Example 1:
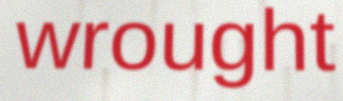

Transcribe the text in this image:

wrought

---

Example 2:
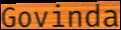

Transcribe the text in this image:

Govinda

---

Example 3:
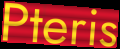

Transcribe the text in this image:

Pteris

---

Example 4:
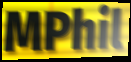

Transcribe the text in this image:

MPhil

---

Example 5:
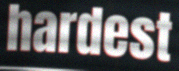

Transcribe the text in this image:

hardest